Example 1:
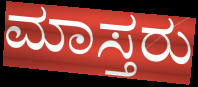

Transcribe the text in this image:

ಮಾಸ್ತರು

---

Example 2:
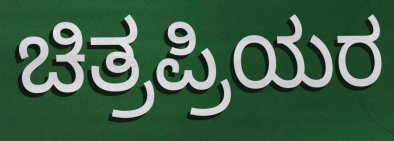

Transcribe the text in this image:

ಚಿತ್ರಪ್ರಿಯರ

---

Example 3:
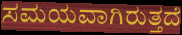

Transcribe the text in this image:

ಸಮಯವಾಗಿರುತ್ತದೆ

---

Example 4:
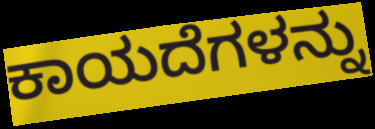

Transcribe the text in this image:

ಕಾಯದೆಗಳನ್ನು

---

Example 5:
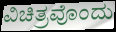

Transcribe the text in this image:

ವಿಚಿತ್ರವೊಂದು